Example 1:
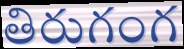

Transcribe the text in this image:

తిరుగంగ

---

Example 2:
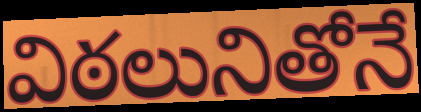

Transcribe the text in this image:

విఠలునితోనే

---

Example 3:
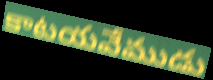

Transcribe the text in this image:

కాటయవేముడు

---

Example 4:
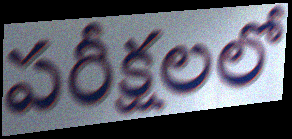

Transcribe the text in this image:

పరీక్షలలో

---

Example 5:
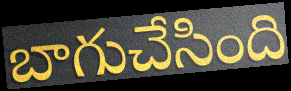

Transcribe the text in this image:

బాగుచేసింది